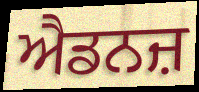
ਐਡਨਜ਼